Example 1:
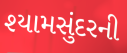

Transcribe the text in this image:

શ્યામસુંદરની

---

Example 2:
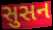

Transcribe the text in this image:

સુસન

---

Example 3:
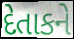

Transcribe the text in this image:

દેતાકને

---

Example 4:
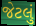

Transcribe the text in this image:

જેટલું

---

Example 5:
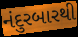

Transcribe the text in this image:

નંદુરબારથી